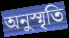
অনুস্মৃতি